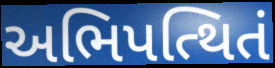
અભિપત્થિતં